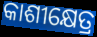
କାଶୀକ୍ଷେତ୍ର